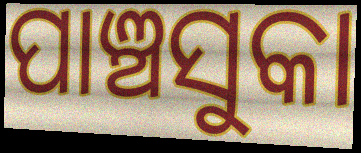
ପାଞ୍ଚସୁକା